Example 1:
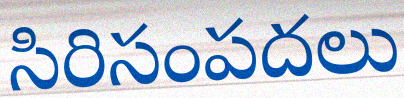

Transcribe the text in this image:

సిరిసంపదలు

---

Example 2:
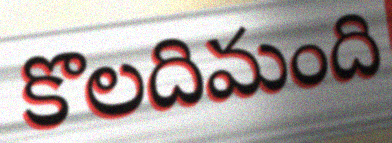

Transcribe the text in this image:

కొలదిమంది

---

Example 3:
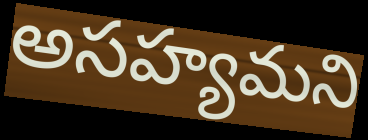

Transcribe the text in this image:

అసహ్యమని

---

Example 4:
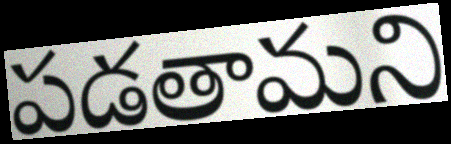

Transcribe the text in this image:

పడతామని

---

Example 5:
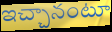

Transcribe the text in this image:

ఇచ్చానంటూ